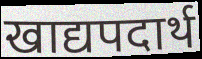
खाद्यपदार्थ